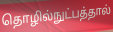
தொழில்நுட்பத்தால்